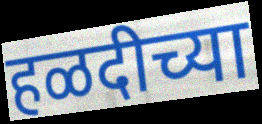
हळदीच्या